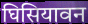
घिसियावन